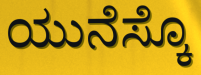
ಯುನೆಸ್ಕೊ